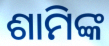
ଶାମିଙ୍କ